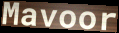
Mavoor